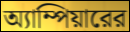
অ্যাম্পিয়ারের